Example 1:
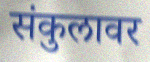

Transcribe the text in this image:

संकुलावर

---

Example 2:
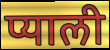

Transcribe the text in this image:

प्याली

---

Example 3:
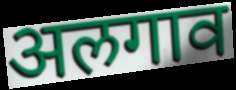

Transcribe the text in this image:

अलगाव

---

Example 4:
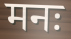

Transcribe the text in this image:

मनः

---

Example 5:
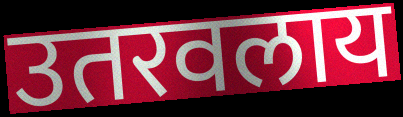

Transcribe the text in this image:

उतरवलाय